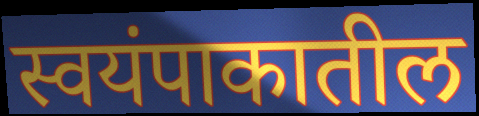
स्वयंपाकातील